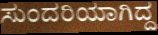
ಸುಂದರಿಯಾಗಿದ್ದ